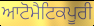
ਆਟੋਮੈਟਿਕਪੂਰੀ